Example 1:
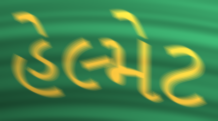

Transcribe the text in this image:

હેલ્મેટ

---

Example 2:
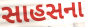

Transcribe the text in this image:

સાહસના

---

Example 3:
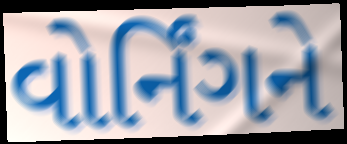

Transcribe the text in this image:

વોર્નિંગને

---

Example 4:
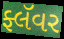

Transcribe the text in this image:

ફ્લૅવર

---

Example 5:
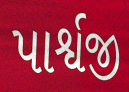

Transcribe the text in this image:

પાર્શ્વજી